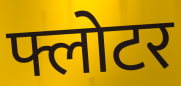
फ्लोटर